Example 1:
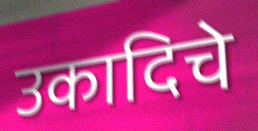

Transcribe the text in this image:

उकादिचे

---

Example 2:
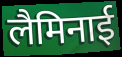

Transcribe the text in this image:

लैमिनाई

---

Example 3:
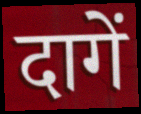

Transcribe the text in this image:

दागें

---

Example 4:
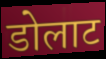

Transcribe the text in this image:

डोलाट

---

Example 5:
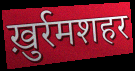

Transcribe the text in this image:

ख़ुर्रमशहर